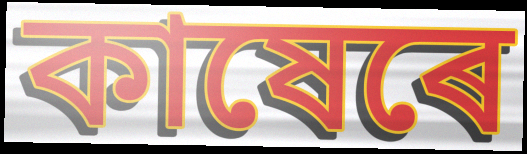
কাষেৰে